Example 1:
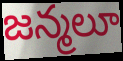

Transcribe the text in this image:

జన్మలూ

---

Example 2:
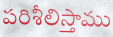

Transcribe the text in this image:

పరిశీలిస్తాము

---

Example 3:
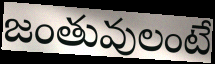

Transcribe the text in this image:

జంతువులంటే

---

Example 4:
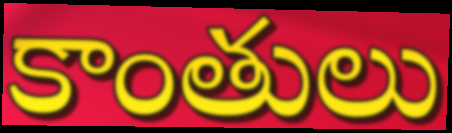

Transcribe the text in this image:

కాంతులు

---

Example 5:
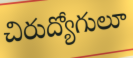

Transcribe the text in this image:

చిరుద్యోగులూ